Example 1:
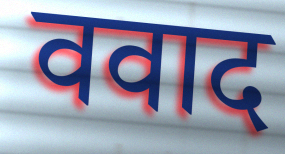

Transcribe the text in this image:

ववाद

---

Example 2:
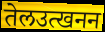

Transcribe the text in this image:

तेलउत्खनन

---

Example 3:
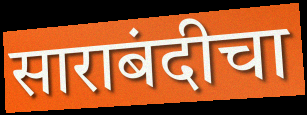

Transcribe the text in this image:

साराबंदीचा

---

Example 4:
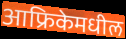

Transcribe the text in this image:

आफ्रिकेमधील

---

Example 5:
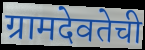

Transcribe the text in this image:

ग्रामदेवतेची